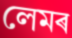
লেমৰ